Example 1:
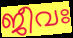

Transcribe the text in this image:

ജീവഃ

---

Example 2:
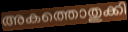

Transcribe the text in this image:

അകത്തൊതുക്കി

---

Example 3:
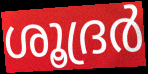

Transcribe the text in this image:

ശൂദ്രർ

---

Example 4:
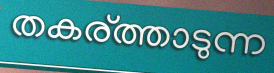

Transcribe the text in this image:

തകര്ത്താടുന്ന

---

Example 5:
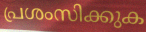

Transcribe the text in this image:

പ്രശംസിക്കുക